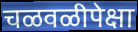
चळवळीपेक्षा